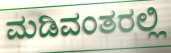
ಮಡಿವಂತರಲ್ಲಿ